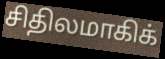
சிதிலமாகிக்